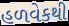
હળવેકથી